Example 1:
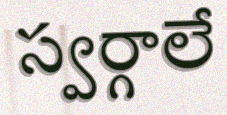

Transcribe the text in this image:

స్వర్గాలే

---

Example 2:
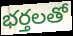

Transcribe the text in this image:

భర్తలతో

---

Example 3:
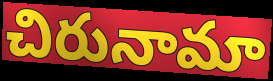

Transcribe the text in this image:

చిరునామా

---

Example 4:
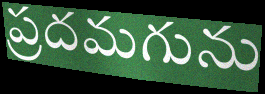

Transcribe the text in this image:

ప్రదమగును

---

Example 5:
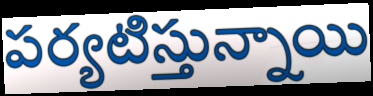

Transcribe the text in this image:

పర్యటిస్తున్నాయి